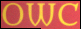
OWC